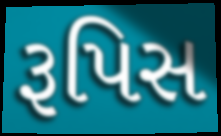
રૂપિસ